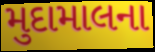
મુદામાલના